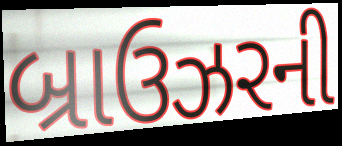
બ્રાઉઝરની